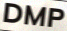
DMP